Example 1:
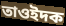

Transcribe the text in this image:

তাওইদক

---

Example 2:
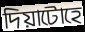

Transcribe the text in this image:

দিয়াটোহে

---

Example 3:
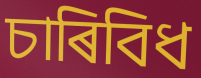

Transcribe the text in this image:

চাৰিবিধ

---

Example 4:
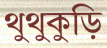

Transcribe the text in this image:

থুথুকুড়ি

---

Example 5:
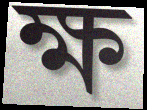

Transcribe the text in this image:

ক্ষ